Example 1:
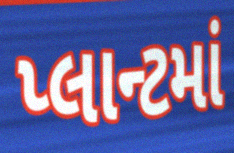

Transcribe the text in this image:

પ્લાન્ટમાં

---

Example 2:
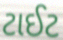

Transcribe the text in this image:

ટાઈટ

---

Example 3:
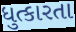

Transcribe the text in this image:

ધુત્કારતા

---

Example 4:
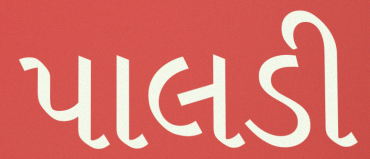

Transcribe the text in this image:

પાલડી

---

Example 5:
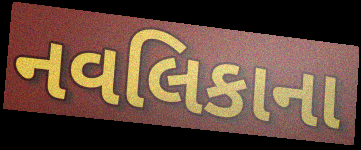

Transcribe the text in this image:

નવલિકાના